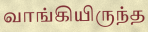
வாங்கியிருந்த